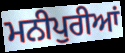
ਮਨੀਪੁਰੀਆਂ